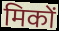
मिकों